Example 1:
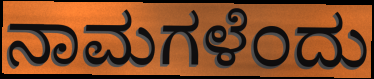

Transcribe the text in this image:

ನಾಮಗಳೆಂದು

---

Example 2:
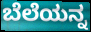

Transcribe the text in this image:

ಬೆಲೆಯನ್ನ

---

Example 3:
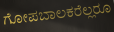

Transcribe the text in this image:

ಗೋಪಬಾಲಕರೆಲ್ಲರೂ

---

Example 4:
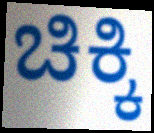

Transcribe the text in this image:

ಚಿಕ್ಕಿ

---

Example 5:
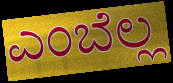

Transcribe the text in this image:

ಎಂಬೆಲ್ಲ